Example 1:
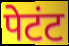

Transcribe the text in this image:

पेटंट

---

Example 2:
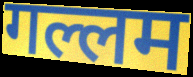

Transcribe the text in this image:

गल्लम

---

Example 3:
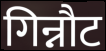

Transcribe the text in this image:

गिन्नौट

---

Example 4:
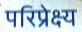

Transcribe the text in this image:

परिप्रेक्ष्य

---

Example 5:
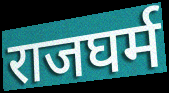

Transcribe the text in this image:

राजघर्म